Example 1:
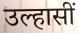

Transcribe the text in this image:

उल्हासीं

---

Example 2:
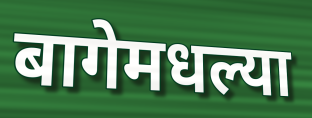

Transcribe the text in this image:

बागेमधल्या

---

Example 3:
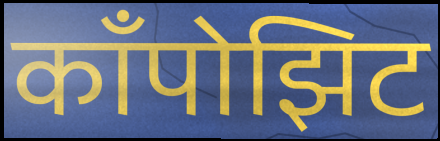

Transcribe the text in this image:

काँपोझिट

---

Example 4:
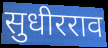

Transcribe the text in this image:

सुधीरराव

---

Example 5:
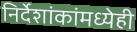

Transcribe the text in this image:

निर्देशांकांमध्येही